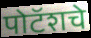
पोटॅशचे